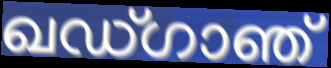
ഖഡ്ഗാഞ്